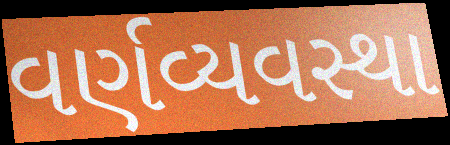
વર્ણવ્યવસ્થા